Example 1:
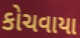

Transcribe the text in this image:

કોચવાયા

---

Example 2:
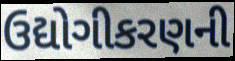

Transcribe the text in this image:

ઉદ્યોગીકરણની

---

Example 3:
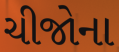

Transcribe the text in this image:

ચીજોના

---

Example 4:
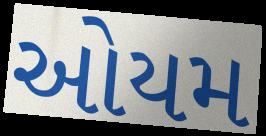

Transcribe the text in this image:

ઓયમ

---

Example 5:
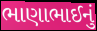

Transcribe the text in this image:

ભાણાભાઈનું